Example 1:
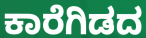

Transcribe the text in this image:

ಕಾರೆಗಿಡದ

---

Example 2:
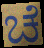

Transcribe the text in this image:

ಚೆ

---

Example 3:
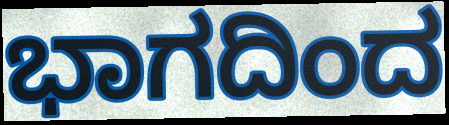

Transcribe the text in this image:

ಭಾಗದಿಂದ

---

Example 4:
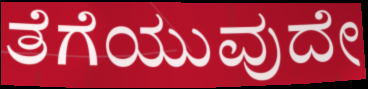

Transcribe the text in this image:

ತೆಗೆಯುವುದೇ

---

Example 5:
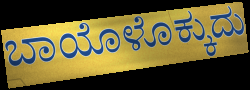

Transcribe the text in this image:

ಬಾಯೊಳೊಕ್ಕುದು